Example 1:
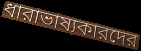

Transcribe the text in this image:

ধারাভাষ্যকারদের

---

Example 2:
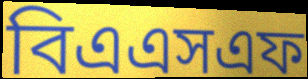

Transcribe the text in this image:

বিএএসএফ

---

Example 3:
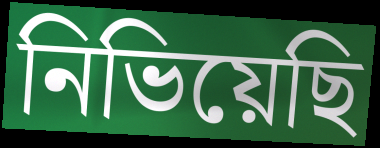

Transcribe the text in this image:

নিভিয়েছি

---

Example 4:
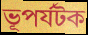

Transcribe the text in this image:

ভূপর্যটক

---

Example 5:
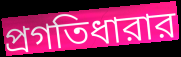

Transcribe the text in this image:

প্রগতিধারার